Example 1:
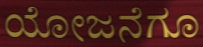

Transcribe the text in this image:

ಯೋಜನೆಗೂ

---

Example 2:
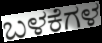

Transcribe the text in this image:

ಬಳಕೆಗಳ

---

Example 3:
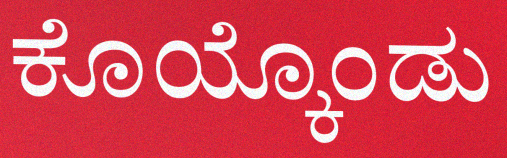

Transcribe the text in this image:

ಕೊಯ್ಕೊಂಡು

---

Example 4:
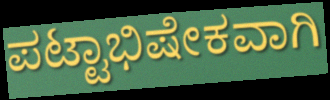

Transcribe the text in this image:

ಪಟ್ಟಾಭಿಷೇಕವಾಗಿ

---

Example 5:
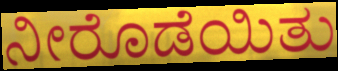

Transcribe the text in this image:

ನೀರೊಡೆಯಿತು